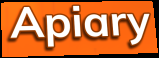
Apiary